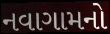
નવાગામનો